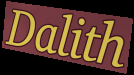
Dalith